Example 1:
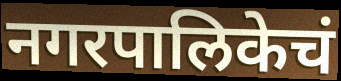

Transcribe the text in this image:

नगरपालिकेचं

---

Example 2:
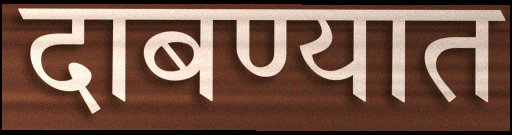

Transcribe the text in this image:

दाबण्यात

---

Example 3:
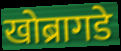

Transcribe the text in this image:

खोब्रागडे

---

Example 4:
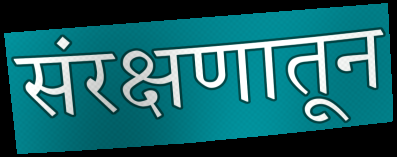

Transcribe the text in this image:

संरक्षणातून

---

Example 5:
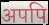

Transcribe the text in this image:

अपपि